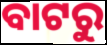
ବାଟରୁ